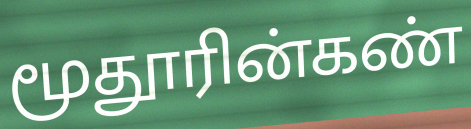
மூதூரின்கண்